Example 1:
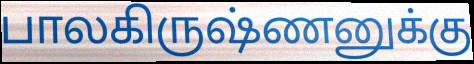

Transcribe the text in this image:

பாலகிருஷ்ணனுக்கு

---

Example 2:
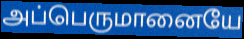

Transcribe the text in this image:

அப்பெருமானையே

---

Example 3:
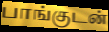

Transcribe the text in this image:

பாங்குடன்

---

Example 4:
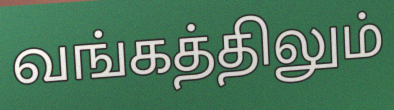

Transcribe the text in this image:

வங்கத்திலும்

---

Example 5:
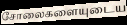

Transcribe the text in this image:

சோலைகளையுடைய